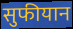
सुफीयान